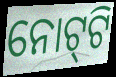
ନୋଟ୍‌ଟି